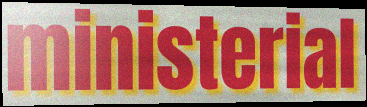
ministerial